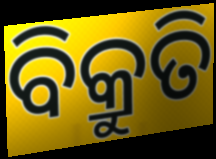
ବିକ୍ରୁତି